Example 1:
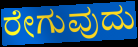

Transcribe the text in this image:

ರೇಗುವುದು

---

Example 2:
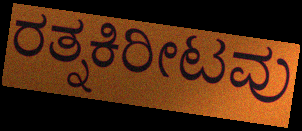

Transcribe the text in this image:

ರತ್ನಕಿರೀಟವು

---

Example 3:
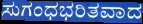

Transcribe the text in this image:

ಸುಗಂಧಭರಿತವಾದ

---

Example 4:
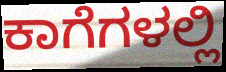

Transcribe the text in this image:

ಕಾಗೆಗಳಲ್ಲಿ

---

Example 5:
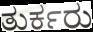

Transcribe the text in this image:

ತುರ್ಕರು